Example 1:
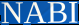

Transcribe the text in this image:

NABI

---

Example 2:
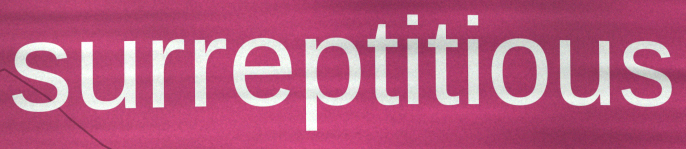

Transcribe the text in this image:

surreptitious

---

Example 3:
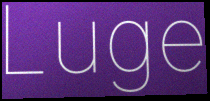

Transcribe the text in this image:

Luge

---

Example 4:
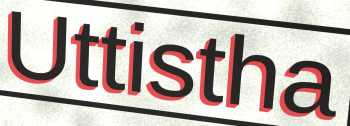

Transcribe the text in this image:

Uttistha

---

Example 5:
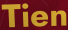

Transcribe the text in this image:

Tien